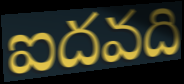
ఐదవది